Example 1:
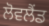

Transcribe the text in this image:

ਲੋਵਲੈਂਡ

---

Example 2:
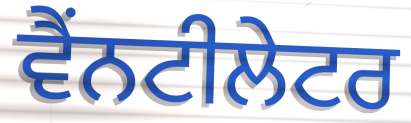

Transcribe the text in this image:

ਵੈਂਨਟੀਲੇਟਰ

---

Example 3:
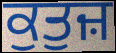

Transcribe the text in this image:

ਕੁਤੁਜ਼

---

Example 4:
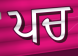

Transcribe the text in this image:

ਪਚ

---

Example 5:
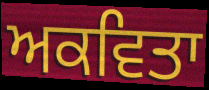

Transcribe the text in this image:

ਅਕਵਿਤਾ